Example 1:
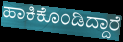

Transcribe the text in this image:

ಹಾಕಿಕೊಂಡಿದ್ದಾರೆ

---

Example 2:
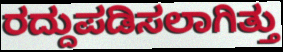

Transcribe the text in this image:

ರದ್ದುಪಡಿಸಲಾಗಿತ್ತು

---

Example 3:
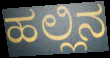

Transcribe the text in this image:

ಹಲ್ಲಿನ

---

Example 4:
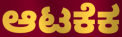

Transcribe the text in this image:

ಆಟಕೆಕ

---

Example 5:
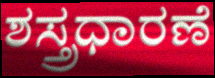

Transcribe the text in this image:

ಶಸ್ತ್ರಧಾರಣೆ